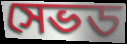
সেভড